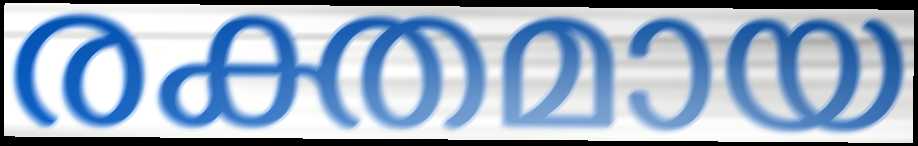
രക്തമായ